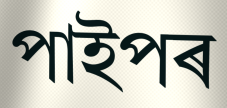
পাইপৰ